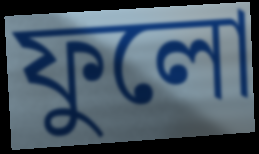
ফুলো